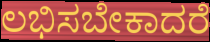
ಲಭಿಸಬೇಕಾದರೆ